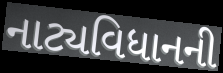
નાટ્યવિધાનની